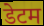
डेटम